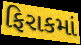
ફિરાકમાં